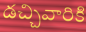
డచ్చివారికి